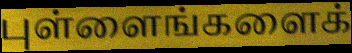
புள்ளைங்களைக்